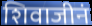
शिवाजीनं